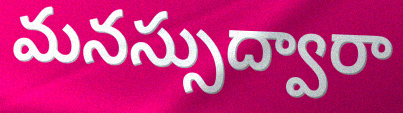
మనస్సుద్వారా